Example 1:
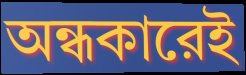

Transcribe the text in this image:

অন্ধকারেই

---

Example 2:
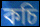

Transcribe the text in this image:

কচি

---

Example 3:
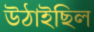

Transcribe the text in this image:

উঠাইছিল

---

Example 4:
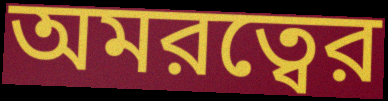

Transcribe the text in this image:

অমরত্বের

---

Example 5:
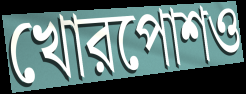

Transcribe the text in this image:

খোরপোশও